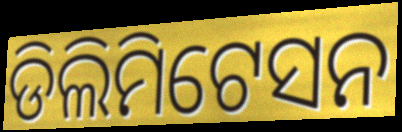
ଡିଲିମିଟେସନ